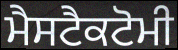
ਮੈਸਟੈਕਟੋਮੀ